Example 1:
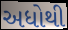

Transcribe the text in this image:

અધોથી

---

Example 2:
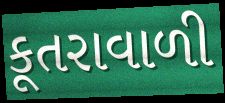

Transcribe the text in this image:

કૂતરાવાળી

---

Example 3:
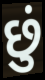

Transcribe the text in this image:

છું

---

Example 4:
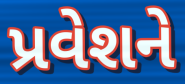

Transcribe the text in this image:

પ્રવેશને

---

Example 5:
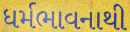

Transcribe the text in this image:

ધર્મભાવનાથી